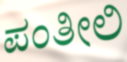
ಪಂತೀಲಿ